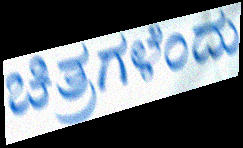
ಚಿತ್ರಗಳೆಂದು